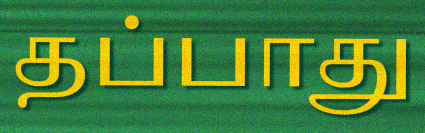
தப்பாது